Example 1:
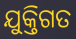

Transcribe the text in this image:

ଯୁକ୍ତିଗତ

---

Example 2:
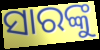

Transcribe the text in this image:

ସାରଙ୍କୁ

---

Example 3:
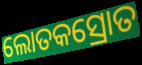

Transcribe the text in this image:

ଲୋତକସ୍ରୋତ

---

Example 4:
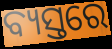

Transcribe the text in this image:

ବ୍ୟସ୍ତରେ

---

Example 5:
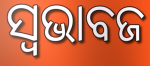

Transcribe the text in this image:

ସ୍ୱଭାବଜ